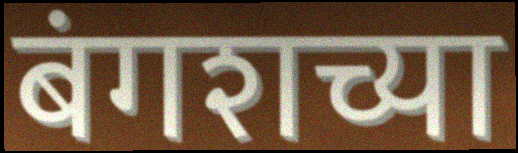
बंगशच्या